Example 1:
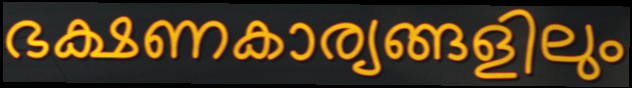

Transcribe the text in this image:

ഭക്ഷണകാര്യങ്ങളിലും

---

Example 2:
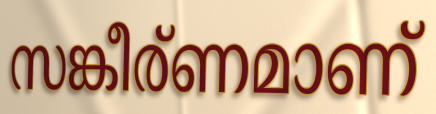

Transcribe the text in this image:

സങ്കീര്ണമാണ്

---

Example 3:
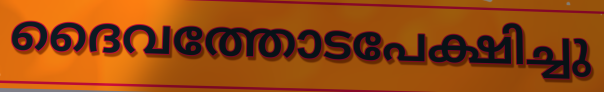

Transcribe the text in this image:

ദൈവത്തോടപേക്ഷിച്ചു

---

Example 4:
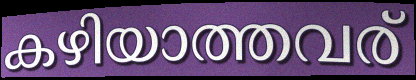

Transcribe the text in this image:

കഴിയാത്തവര്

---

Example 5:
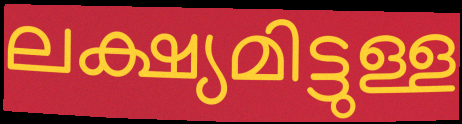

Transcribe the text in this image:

ലക്ഷ്യമിട്ടുള്ള